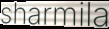
sharmila